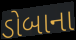
ડોબાના